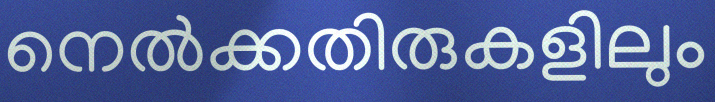
നെൽക്കതിരുകളിലും